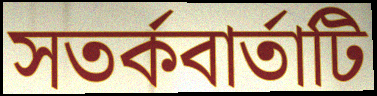
সতর্কবার্তাটি